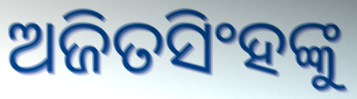
ଅଜିତସିଂହଙ୍କୁ